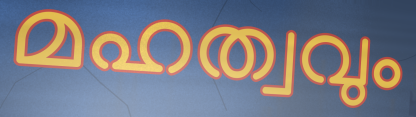
മഹത്വവും